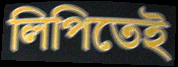
লিপিতেই